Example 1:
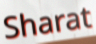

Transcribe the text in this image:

Sharat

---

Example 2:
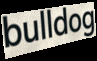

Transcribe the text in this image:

bulldog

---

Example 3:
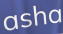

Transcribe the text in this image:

asha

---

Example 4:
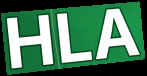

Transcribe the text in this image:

HLA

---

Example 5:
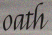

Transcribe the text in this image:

oath